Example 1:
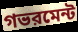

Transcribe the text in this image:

গভরমেন্ট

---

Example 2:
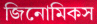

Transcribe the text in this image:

জিনোমিকস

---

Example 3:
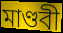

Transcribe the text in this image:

মাণ্ডবী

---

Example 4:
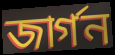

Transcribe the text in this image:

জার্গন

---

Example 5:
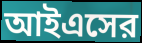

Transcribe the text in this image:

আইএসের